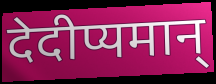
देदीप्यमान्